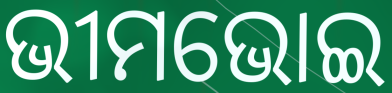
ଭୀମଭୋଇ